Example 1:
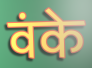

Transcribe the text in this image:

वंके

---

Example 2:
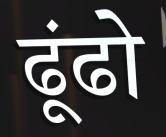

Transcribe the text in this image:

ढूंढो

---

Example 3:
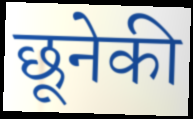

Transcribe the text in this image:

छूनेकी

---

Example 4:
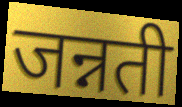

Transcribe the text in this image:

जन्नती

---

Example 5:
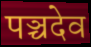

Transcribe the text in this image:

पञ्चदेव